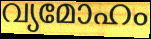
വ്യമോഹം